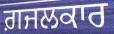
ਗ਼ਜਲਕਾਰ